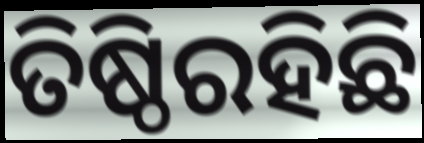
ତିଷ୍ଠିରହିଛି